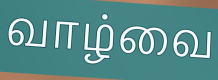
வாழ்வை